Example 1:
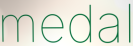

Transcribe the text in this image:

medal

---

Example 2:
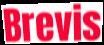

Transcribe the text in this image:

Brevis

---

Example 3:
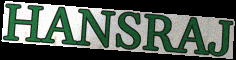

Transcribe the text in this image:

HANSRAJ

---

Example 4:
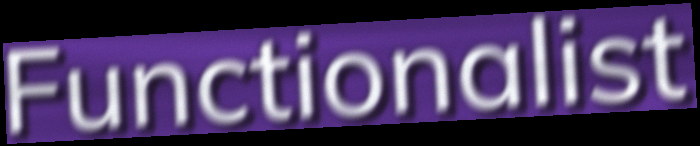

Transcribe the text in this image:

Functionalist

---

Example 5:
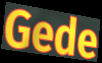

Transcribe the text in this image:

Gede